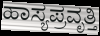
ಹಾಸ್ಯಪ್ರವೃತ್ತಿ